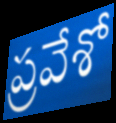
ప్రవేశో